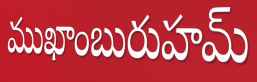
ముఖాంబురుహమ్